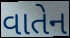
વાતેન